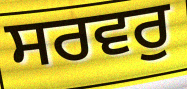
ਸਰਵਰੁ